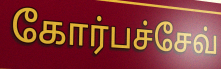
கோர்பச்சேவ்